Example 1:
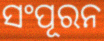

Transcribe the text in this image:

ସଂପୂରନ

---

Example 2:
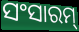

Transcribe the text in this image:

ସଂସାରମ୍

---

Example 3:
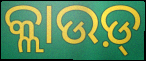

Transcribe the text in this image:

କ୍ଲାଉଡ଼୍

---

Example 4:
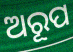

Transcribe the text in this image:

ଅରୂପ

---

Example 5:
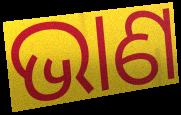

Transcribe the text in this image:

ଭାଣ